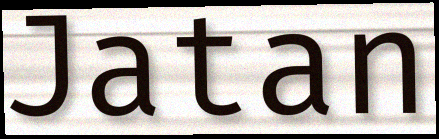
Jatan